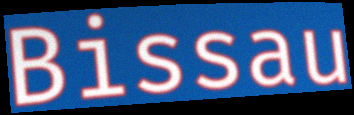
Bissau